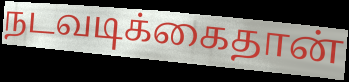
நடவடிக்கைதான்